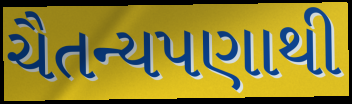
ચૈતન્યપણાથી